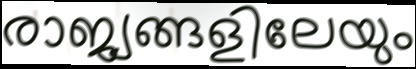
രാജ്യങ്ങളിലേയും